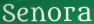
Senora